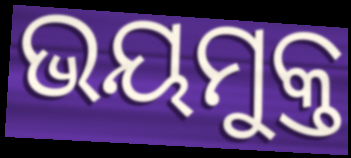
ଭୟମୁକ୍ତ